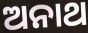
ଅନାଥ